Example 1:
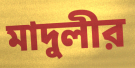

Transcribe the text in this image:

মাদুলীর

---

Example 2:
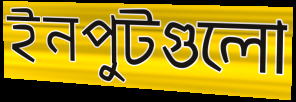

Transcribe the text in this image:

ইনপুটগুলো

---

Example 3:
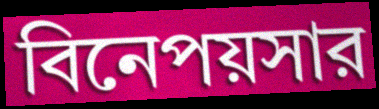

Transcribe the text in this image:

বিনেপয়সার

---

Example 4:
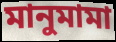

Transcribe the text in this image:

মানুমামা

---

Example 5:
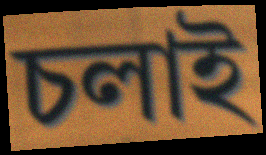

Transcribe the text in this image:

চলাই